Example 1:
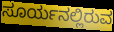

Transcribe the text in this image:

ಸೂರ್ಯನಲ್ಲಿರುವ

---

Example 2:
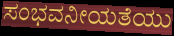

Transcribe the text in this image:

ಸಂಭವನೀಯತೆಯು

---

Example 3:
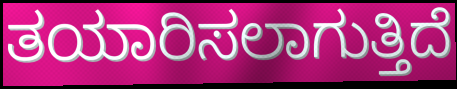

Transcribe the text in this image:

ತಯಾರಿಸಲಾಗುತ್ತಿದೆ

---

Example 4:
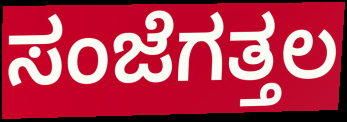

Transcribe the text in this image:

ಸಂಜೆಗತ್ತಲ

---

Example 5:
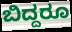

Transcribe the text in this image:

ಬಿದ್ದರೂ